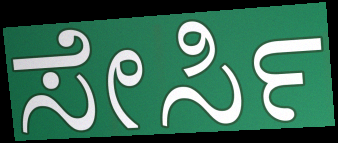
ಸೇರ್ಸಿ